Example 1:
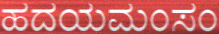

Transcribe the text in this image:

ಹದಯಮಂಸಂ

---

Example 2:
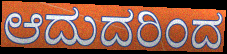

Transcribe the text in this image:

ಆದುದರಿಂದ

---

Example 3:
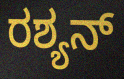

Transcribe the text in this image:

ರಶ್ಯನ್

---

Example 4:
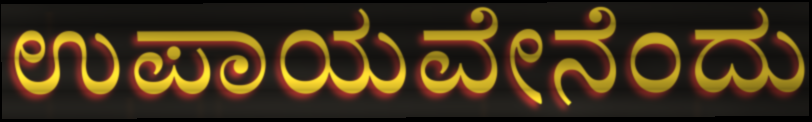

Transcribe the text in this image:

ಉಪಾಯವೇನೆಂದು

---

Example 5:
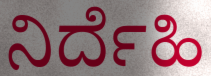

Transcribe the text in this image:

ನಿರ್ದೆಹಿ